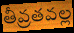
తీవ్రతవల్ల